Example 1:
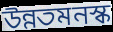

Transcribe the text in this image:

উন্নতমনস্ক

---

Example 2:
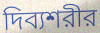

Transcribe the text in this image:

দিব্যশরীর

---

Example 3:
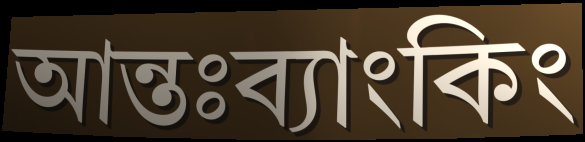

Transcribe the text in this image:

আন্তঃব্যাংকিং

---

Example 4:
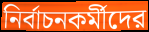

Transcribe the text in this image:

নির্বাচনকর্মীদের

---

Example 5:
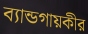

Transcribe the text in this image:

ব্যান্ডগায়কীর